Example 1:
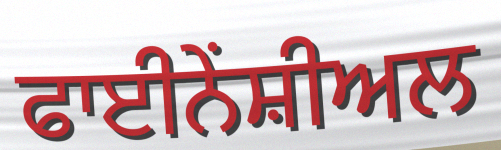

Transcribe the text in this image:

ਫਾਈਨੇਂਸ਼ੀਅਲ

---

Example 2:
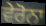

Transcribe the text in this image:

ਵੇਰੋਨਾ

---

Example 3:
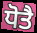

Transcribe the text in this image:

ਧੋਤੈ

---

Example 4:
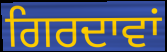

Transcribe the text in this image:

ਗਿਰਦਾਵਾਂ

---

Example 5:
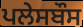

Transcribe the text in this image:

ਪਲੇਸਬੌਸ